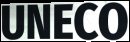
UNECO